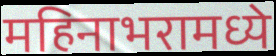
महिनाभरामध्ये